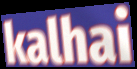
kalhai